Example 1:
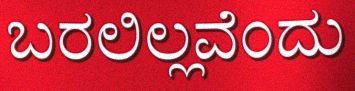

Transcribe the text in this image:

ಬರಲಿಲ್ಲವೆಂದು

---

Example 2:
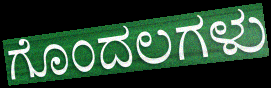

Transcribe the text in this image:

ಗೊಂದಲಗಳು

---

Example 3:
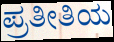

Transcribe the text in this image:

ಪ್ರತೀತಿಯ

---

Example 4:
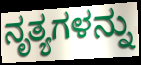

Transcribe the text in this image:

ನೃತ್ಯಗಳನ್ನು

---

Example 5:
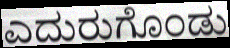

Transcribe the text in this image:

ಎದುರುಗೊಂಡು